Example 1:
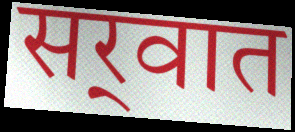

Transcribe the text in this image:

सर्वात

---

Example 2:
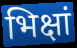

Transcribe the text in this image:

भिक्षां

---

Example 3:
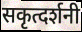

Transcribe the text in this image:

सकृत्दर्शनी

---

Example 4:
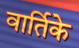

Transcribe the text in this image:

वार्तिके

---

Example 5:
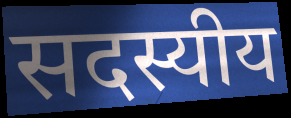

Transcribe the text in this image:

सदस्यीय